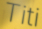
Titi